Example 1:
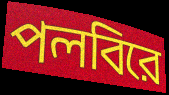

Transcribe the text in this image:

পলবিরে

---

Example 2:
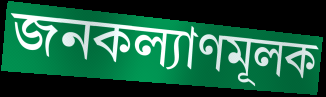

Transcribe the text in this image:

জনকল্যাণমূলক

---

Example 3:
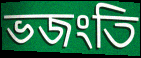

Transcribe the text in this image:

ভজংতি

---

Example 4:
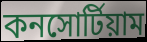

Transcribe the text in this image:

কনসোর্টিয়াম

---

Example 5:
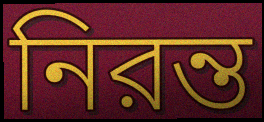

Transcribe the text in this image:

নিরন্ত